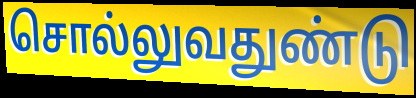
சொல்லுவதுண்டு